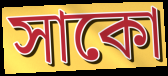
সাকো